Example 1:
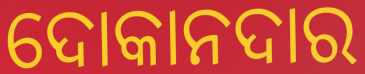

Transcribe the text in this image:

ଦୋକାନଦାର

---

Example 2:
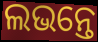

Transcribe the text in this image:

ଲଭନ୍ତେ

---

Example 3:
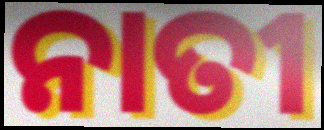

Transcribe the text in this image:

ନାତୀ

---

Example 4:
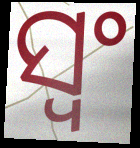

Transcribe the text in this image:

ସ୍ୱଂ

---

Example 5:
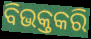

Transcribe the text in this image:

ବିଭକ୍ତକରି